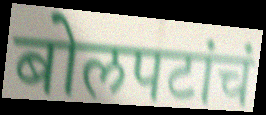
बोलपटांचं